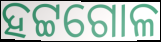
ହଟ୍ଟଗୋଳ